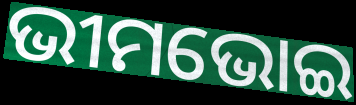
ଭୀମଭୋଇ